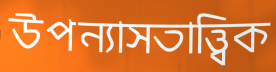
উপন্যাসতাত্ত্বিক